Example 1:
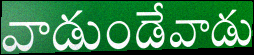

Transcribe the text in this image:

వాడుండేవాడు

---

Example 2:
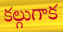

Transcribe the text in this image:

కల్గుగాక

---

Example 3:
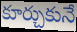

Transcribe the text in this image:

కూర్చుకునే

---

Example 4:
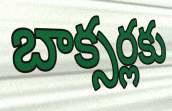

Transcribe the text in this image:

బాక్సర్లకు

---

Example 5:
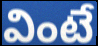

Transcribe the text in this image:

వింటే